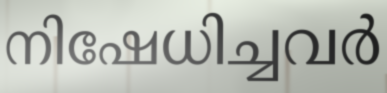
നിഷേധിച്ചവർ